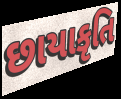
છાયાકૃતિ